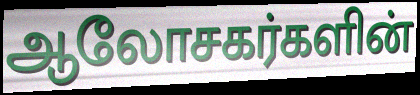
ஆலோசகர்களின்